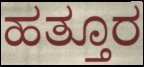
ಹತ್ತೂರ